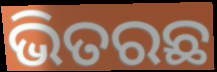
ଭିତରଛ